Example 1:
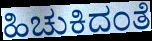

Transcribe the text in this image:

ಹಿಚುಕಿದಂತೆ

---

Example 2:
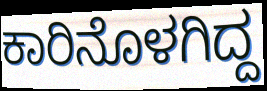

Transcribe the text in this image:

ಕಾರಿನೊಳಗಿದ್ದ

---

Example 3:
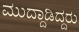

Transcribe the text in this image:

ಮುದ್ದಾಡಿದ್ದರು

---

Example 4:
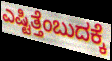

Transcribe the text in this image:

ಎಷ್ಟಿತ್ತೆಂಬುದಕ್ಕೆ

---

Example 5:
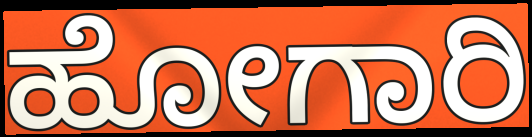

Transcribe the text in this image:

ಹೋಗಾರಿ